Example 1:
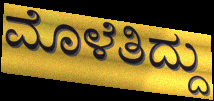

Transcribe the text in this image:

ಮೊಳೆತಿದ್ದು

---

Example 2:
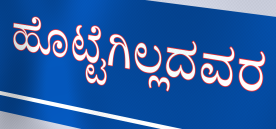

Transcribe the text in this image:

ಹೊಟ್ಟೆಗಿಲ್ಲದವರ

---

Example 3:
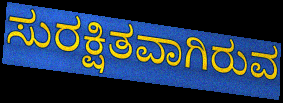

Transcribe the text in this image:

ಸುರಕ್ಷಿತವಾಗಿರುವ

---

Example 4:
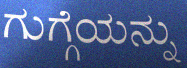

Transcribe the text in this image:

ಗುಗ್ಗೆಯನ್ನು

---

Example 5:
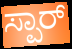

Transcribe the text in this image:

ಸ್ಪಾರ್